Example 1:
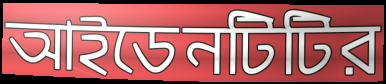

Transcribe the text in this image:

আইডেনটিটির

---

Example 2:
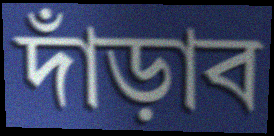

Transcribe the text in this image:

দাঁড়াব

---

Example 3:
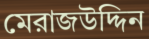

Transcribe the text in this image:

মেরাজউদ্দিন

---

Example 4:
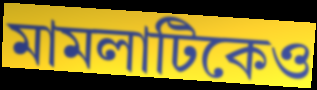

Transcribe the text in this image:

মামলাটিকেও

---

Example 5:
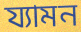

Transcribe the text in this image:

য্যামন